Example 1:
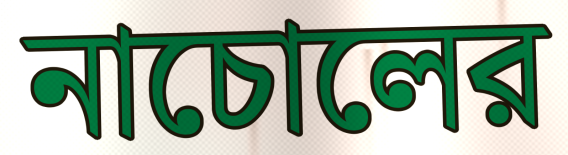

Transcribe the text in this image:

নাচোলের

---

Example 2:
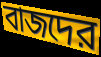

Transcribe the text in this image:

বাজদের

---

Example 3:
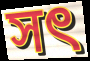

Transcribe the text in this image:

সৎ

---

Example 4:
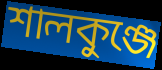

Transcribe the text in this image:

শালকুঞ্জে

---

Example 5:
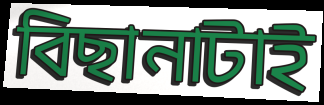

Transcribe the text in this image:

বিছানাটাই